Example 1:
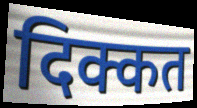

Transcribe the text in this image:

दिक्कत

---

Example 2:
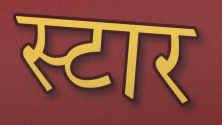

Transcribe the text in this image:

स्टार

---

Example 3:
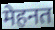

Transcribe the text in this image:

मेहनत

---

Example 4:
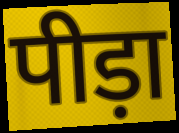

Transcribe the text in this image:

पीड़ा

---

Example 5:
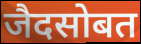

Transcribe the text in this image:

जैदसोबत